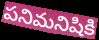
పనిమనిషికి